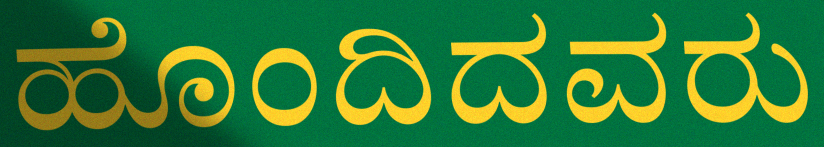
ಹೊಂದಿದವರು